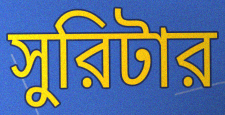
সুরিটার